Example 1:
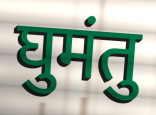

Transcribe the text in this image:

घुमंतु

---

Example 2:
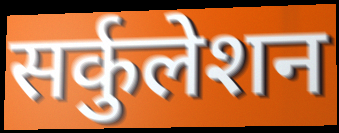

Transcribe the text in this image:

सर्कुलेशन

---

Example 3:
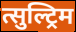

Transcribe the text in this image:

त्सुल्ट्रिम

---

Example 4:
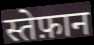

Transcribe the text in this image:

स्तेफ़ान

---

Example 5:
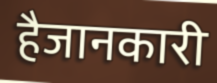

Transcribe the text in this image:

हैजानकारी